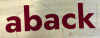
aback